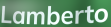
Lamberto